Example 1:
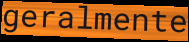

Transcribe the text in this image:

geralmente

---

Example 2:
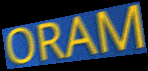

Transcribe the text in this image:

ORAM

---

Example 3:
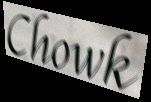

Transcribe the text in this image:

Chowk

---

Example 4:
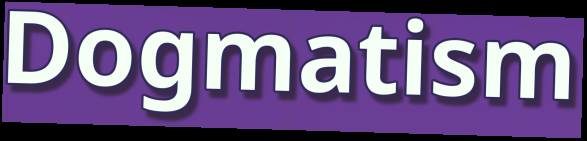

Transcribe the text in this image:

Dogmatism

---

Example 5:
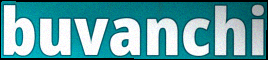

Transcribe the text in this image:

buvanchi